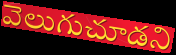
వెలుగుచూడని